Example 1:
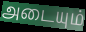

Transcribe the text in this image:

அடையும்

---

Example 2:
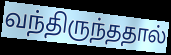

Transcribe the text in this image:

வந்திருந்ததால்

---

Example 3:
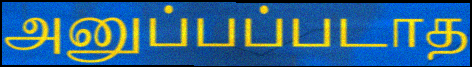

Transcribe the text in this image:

அனுப்பப்படாத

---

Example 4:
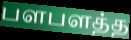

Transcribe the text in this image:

பளபளத்த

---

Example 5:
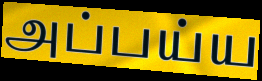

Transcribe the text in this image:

அப்பய்ய